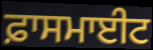
ਫ਼ਾਸਮਾਈਟ